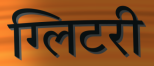
ग्लिटरी